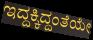
ಇದ್ದಕ್ಕಿದ್ದಂತೆಯೇ